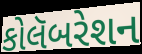
કોલૅબરેશન